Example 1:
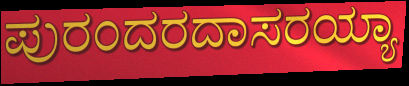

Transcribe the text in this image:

ಪುರಂದರದಾಸರಯ್ಯಾ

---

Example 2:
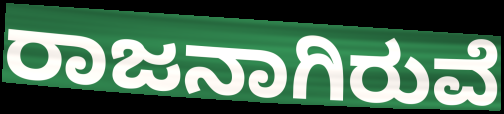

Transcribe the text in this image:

ರಾಜನಾಗಿರುವೆ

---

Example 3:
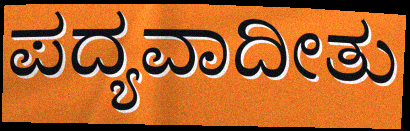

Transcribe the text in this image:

ಪದ್ಯವಾದೀತು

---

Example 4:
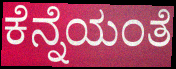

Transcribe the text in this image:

ಕೆನ್ನೆಯಂತೆ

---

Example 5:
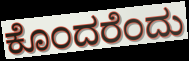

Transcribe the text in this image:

ಕೊಂದರೆಂದು